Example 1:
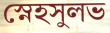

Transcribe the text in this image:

স্নেহসুলভ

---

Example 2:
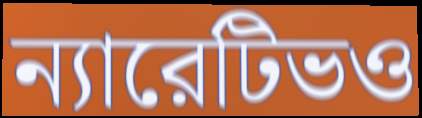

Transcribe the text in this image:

ন্যারেটিভও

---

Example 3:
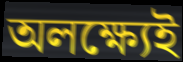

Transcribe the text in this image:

অলক্ষ্যেই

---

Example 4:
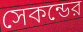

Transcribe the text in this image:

সেকন্ডের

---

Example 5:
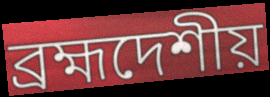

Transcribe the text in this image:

ব্রহ্মদেশীয়